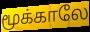
மூக்காலே